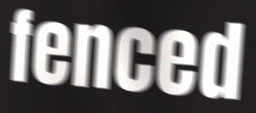
fenced